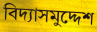
বিদ্যাসমুদ্দেশ